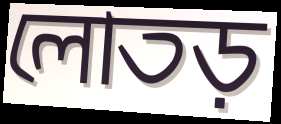
লোতড়